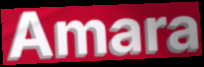
Amara